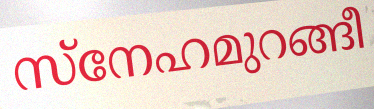
സ്നേഹമുറങ്ങീ